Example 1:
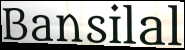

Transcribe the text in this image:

Bansilal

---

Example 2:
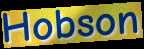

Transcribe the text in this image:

Hobson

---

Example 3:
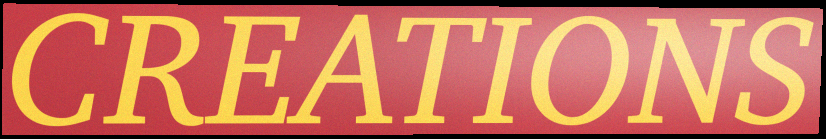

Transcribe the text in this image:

CREATIONS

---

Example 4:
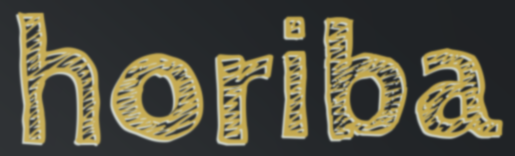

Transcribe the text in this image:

horiba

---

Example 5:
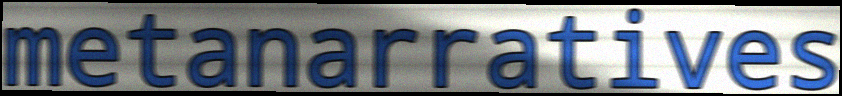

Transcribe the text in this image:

metanarratives